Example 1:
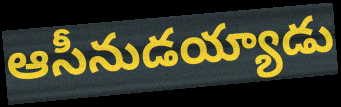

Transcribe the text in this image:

ఆసీనుడయ్యాడు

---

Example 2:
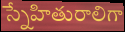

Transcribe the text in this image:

స్నేహితురాలిగా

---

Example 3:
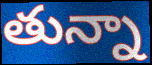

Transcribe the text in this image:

తున్నా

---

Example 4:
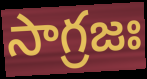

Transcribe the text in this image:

సాగ్రజః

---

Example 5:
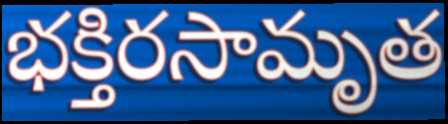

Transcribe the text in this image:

భక్తిరసామృత